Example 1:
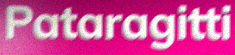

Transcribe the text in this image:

Pataragitti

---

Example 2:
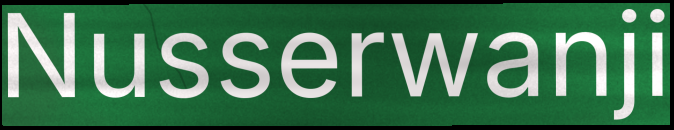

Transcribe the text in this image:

Nusserwanji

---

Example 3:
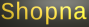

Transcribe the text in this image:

Shopna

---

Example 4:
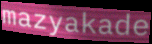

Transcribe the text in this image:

mazyakade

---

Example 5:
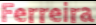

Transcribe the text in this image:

Ferreira